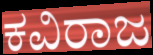
ಕವಿರಾಜ